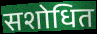
सशोधित